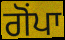
ਗੋਂਪਾ